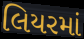
લિયરમાં